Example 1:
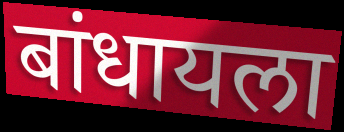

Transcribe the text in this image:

बांधायला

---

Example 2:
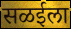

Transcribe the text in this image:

सळईला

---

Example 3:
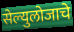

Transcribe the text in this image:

सेल्युलोजाचे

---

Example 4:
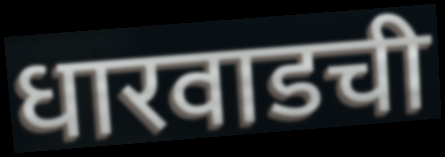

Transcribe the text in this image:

धारवाडची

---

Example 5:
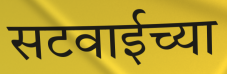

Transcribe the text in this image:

सटवाईच्या